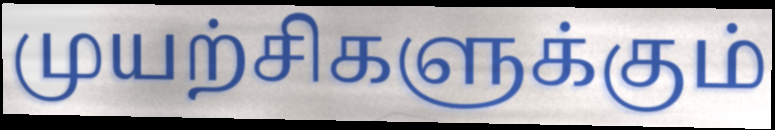
முயற்சிகளுக்கும்